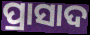
ପ୍ରାସାଦ